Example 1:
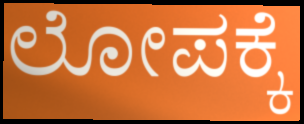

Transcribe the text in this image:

ಲೋಪಕ್ಕೆ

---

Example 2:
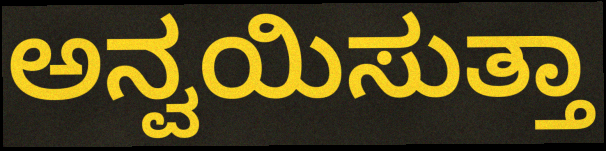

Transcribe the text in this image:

ಅನ್ವಯಿಸುತ್ತಾ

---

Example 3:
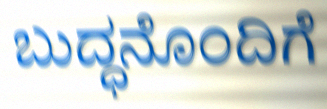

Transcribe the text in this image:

ಬುದ್ಧನೊಂದಿಗೆ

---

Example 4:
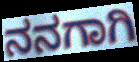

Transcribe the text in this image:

ನನಗಾಗಿ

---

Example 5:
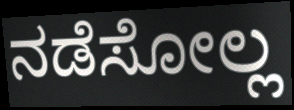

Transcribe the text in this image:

ನಡೆಸೋಲ್ಲ